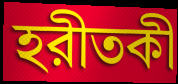
হরীতকী